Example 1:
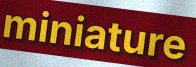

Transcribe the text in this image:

miniature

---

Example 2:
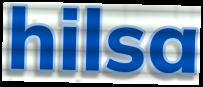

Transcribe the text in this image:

hilsa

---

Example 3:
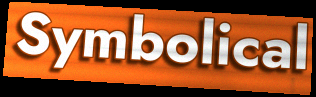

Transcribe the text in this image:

Symbolical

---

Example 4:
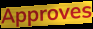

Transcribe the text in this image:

Approves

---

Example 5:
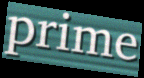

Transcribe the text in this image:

prime